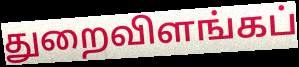
துறைவிளங்கப்